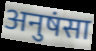
अनुषंसा